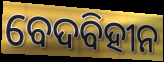
ବେଦବିହୀନ